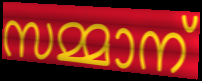
സമ്മാന്